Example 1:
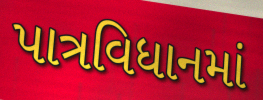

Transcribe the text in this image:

પાત્રવિધાનમાં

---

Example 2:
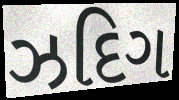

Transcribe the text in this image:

ઝદિગ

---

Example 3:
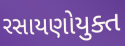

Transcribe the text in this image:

રસાયણોયુક્ત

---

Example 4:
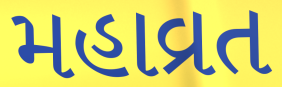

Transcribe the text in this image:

મહાવ્રત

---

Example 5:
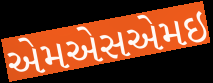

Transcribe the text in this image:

એમએસએમઇ